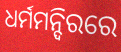
ଧର୍ମମନ୍ଦିରରେ